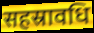
सहस्रावधि